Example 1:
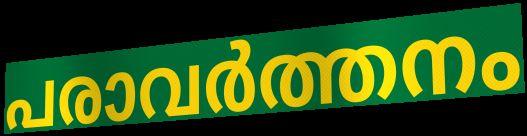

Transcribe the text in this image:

പരാവർത്തനം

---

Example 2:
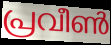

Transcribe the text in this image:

പ്രവീൺ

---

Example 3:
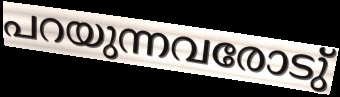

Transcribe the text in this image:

പറയുന്നവരോടു്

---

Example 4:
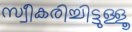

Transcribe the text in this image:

സ്വീകരിച്ചിട്ടുള്ളൂ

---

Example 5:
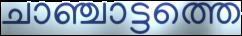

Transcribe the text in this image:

ചാഞ്ചാട്ടത്തെ